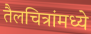
तैलचित्रांमध्ये